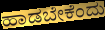
ಹಾಡಬೇಕೆಂದು